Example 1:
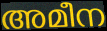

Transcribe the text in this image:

അമീന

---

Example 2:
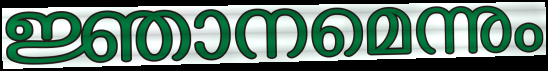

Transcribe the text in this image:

ജ്ഞാനമെന്നും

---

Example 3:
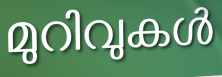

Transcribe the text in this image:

മുറിവുകൾ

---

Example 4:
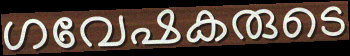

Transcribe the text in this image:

ഗവേഷകരുടെ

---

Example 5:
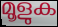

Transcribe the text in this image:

മൂളുക